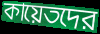
কায়েতদের